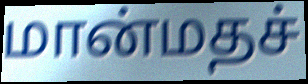
மான்மதச்